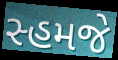
સ્હમજે